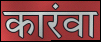
कारंवा